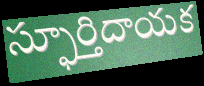
స్ఫూర్తిదాయక